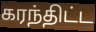
கரந்திட்ட